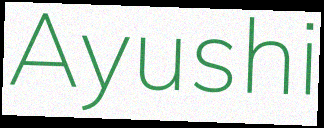
Ayushi